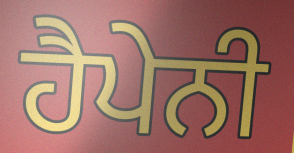
ਹੈਪੇਨੀ